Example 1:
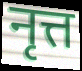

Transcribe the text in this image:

नृत्त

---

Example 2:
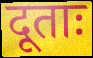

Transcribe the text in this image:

दूताः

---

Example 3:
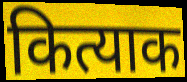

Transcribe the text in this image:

कित्याक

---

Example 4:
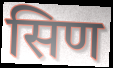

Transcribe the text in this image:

सिण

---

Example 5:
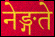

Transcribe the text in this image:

नेङ्गते